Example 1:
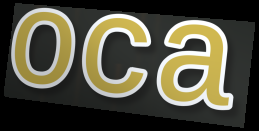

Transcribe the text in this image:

oca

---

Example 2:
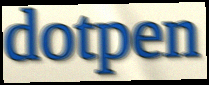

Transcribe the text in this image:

dotpen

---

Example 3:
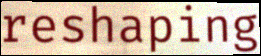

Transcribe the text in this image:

reshaping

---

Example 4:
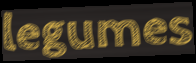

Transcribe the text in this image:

legumes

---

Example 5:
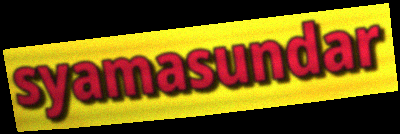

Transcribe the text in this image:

syamasundar